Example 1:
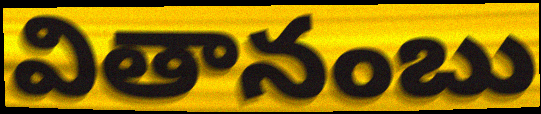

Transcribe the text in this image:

వితానంబు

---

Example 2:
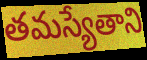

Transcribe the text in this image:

తమస్యేతాని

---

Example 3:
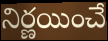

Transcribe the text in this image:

నిర్ణయించే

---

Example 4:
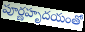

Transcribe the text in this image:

పూర్ణహృదయంతో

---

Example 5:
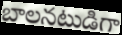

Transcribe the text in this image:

బాలనటుడిగా